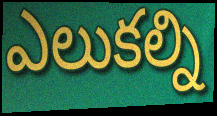
ఎలుకల్ని